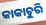
କାକାଚୁରି